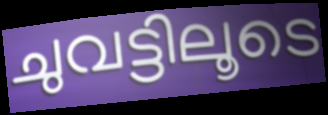
ചുവട്ടിലൂടെ